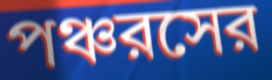
পঞ্চরসের